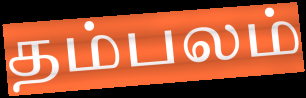
தம்பலம்